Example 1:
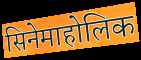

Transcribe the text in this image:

सिनेमाहोलिक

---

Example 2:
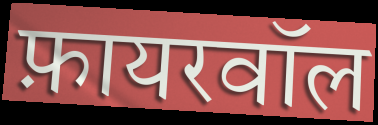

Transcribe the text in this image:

फ़ायरवॉल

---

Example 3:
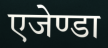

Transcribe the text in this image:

एजेण्डा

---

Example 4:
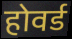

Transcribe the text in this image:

होवर्ड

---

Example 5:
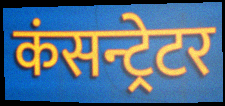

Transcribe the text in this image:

कंसन्ट्रेटर